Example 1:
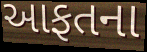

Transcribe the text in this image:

આફતના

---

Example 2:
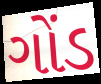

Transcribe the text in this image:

ગોંડ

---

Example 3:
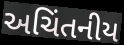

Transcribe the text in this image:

અચિંતનીય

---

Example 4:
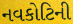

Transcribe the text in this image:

નવકોટિની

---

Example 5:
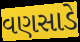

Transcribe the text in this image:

વણસાડે